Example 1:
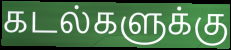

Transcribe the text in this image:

கடல்களுக்கு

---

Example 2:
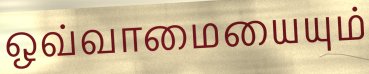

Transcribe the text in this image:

ஒவ்வாமையையும்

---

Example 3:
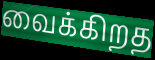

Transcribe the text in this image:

வைக்கிறத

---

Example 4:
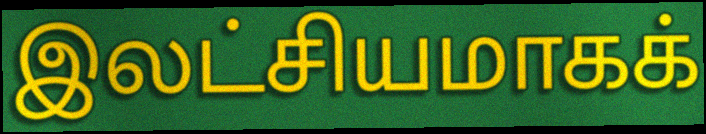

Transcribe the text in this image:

இலட்சியமாகக்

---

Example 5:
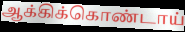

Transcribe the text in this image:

ஆக்கிக்கொண்டாய்